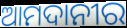
ଆମଦାନୀର